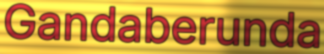
Gandaberunda